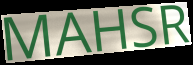
MAHSR